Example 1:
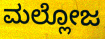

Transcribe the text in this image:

ಮಲ್ಲೋಜ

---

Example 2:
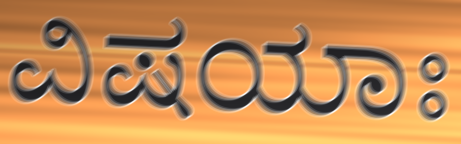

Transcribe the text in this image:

ವಿಷಯಾಃ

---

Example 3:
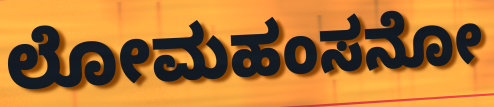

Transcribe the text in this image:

ಲೋಮಹಂಸನೋ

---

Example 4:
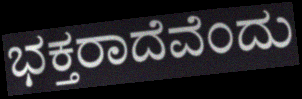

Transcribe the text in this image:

ಭಕ್ತರಾದೆವೆಂದು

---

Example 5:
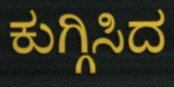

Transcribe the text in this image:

ಕುಗ್ಗಿಸಿದ